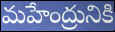
మహేంద్రునికి